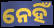
ନେହିଁ